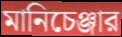
মানিচেঞ্জার